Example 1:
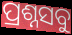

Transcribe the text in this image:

ପ୍ରଶ୍ନସବୁ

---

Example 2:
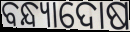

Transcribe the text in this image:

ବନ୍ଧ୍ୟାଦୋଷ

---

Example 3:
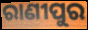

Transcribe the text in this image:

ରାଣୀପୁର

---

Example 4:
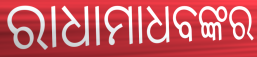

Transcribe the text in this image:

ରାଧାମାଧବଙ୍କର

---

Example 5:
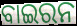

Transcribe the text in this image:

ବାଇରନ